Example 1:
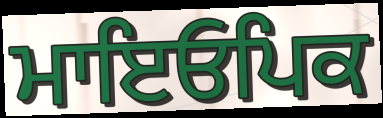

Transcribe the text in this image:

ਮਾਇਓਪਿਕ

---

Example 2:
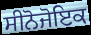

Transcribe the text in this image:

ਸੀਨੋਜੋਇਕ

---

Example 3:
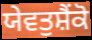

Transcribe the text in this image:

ਯੇਵਤੁਸ਼ੈਂਕੋ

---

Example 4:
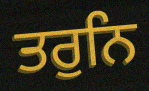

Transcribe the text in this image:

ਤਰੁਨਿ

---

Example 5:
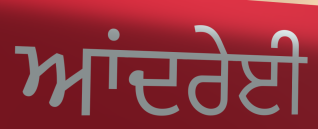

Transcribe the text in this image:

ਆਂਦਰੇਈ